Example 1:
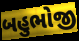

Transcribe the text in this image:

બહુભોજી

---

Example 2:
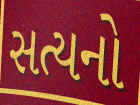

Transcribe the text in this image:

સત્યનો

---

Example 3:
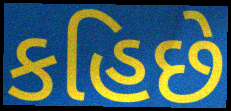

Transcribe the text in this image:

કહિછે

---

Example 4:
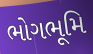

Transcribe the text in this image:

ભોગભૂમિ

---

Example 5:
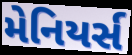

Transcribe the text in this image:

મેનિયર્સ